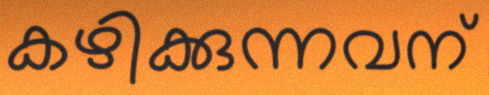
കഴിക്കുന്നവന്